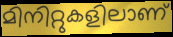
മിനിറ്റുകളിലാണ്